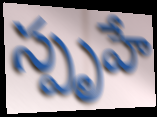
స్పృహే